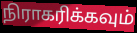
நிராகரிக்கவும்